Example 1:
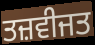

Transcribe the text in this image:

ਤਜ਼ਵੀਜਤ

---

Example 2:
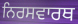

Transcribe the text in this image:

ਨਿਰਸਵਾਰਥ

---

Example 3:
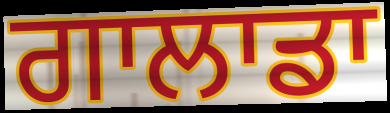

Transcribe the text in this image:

ਗਾਲਾਡਾ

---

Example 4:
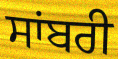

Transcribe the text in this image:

ਸਾਂਬਰੀ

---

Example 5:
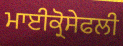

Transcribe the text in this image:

ਮਾਈਕ੍ਰੋਸੇਫਲੀ